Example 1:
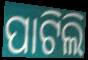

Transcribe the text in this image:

ପାଟିଲି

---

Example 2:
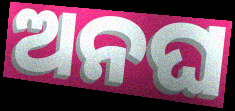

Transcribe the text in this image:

ଅନଘ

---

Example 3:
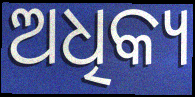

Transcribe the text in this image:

ଅଧିକ୍ୟ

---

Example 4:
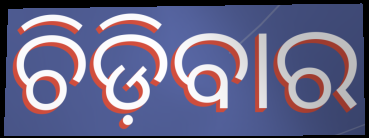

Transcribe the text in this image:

ଚିଡ଼ିବାର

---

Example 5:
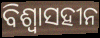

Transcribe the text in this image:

ବିଶ୍ୱାସହୀନ